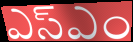
ఎస్ఎం